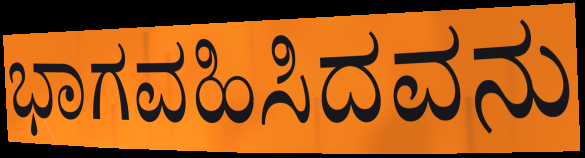
ಭಾಗವಹಿಸಿದವನು